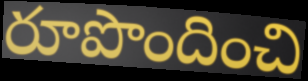
రూపొందించి